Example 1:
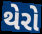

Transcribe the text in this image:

થેરો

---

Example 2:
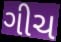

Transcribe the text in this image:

ગીચ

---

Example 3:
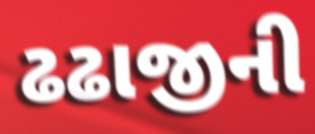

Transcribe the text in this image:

ઢઢાજીની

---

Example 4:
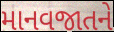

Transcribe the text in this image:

માનવજાતને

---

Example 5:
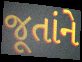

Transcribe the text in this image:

જૂતાંને